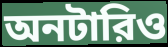
অনটারিও